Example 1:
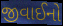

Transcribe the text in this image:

જીવાઈનો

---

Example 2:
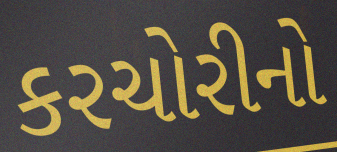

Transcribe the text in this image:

કરચોરીનો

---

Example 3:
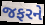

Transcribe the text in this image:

જફરને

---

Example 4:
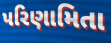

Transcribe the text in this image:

પરિણામિતા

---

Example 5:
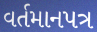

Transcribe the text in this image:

વર્તમાનપત્ર